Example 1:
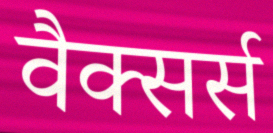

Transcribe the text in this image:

वैक्सर्स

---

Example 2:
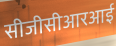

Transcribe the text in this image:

सीजीसीआरआई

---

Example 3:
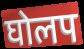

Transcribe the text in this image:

घोलप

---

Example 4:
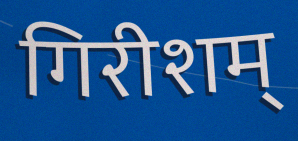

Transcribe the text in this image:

गिरीशम्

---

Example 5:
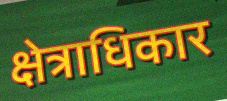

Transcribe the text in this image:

क्षेत्राधिकार